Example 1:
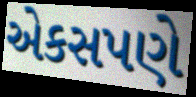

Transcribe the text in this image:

એકસપણે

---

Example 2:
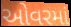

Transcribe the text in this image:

ઓવરમાં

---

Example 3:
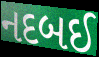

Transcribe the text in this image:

નદબઈ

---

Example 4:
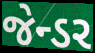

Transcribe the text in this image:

જેન્ડર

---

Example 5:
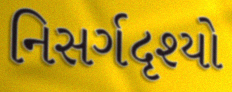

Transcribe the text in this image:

નિસર્ગદૃશ્યો